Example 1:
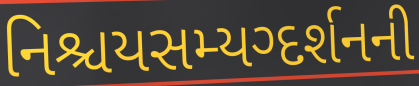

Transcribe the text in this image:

નિશ્ચયસમ્યગ્દર્શનની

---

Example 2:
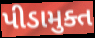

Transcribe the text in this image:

પીડામુક્ત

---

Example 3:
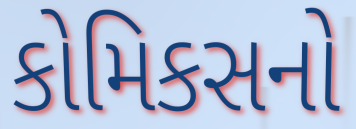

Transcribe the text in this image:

કોમિકસનો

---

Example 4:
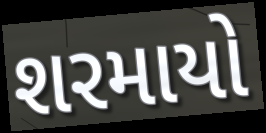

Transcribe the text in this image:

શરમાયો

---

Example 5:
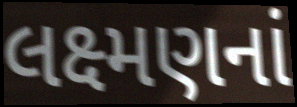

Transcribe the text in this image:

લક્ષ્મણનાં